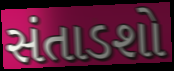
સંતાડશો